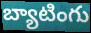
బ్యాటింగు